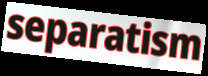
separatism